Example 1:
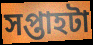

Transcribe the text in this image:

সপ্তাহটা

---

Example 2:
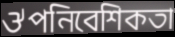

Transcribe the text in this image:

ঔপনিবেশিকতা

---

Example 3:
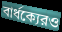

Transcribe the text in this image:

বার্ধক্যেরও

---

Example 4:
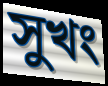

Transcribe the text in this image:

সুখং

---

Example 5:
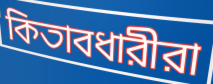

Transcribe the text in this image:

কিতাবধারীরা